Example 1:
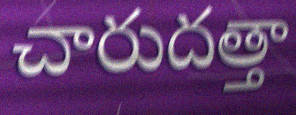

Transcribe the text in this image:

చారుదత్తా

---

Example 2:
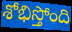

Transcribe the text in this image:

శోభిస్తోంది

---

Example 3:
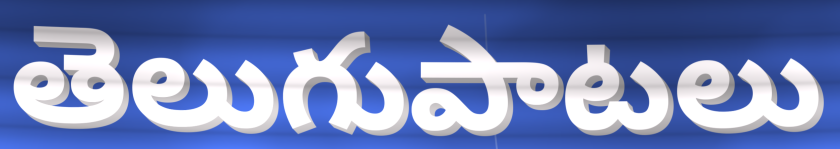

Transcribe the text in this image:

తెలుగుపాటలు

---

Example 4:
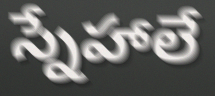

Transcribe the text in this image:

స్నేహాలే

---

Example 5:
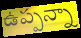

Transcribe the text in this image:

ఉప్పన్నా